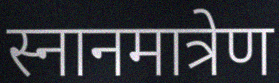
स्नानमात्रेण